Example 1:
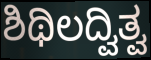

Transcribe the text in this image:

ಶಿಥಿಲದ್ವಿತ್ವ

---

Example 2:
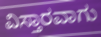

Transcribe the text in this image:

ವಿಸ್ತಾರವಾಗು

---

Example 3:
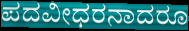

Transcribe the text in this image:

ಪದವೀಧರನಾದರೂ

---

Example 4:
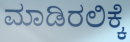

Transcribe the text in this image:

ಮಾಡಿರಲಿಕ್ಕೆ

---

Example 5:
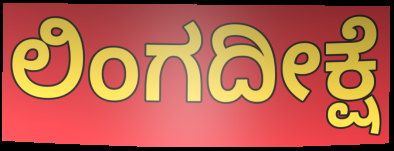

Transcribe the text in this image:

ಲಿಂಗದೀಕ್ಷೆ